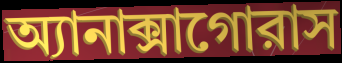
অ্যানাক্সাগোরাস